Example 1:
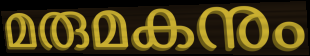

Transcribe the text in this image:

മരുമകനും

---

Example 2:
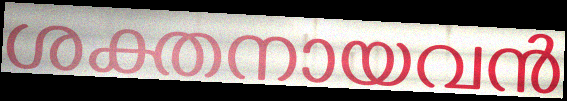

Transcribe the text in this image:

ശക്തനായവൻ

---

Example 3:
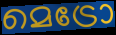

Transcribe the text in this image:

മെട്രോ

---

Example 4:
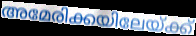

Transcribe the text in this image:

അമേരിക്കയിലേയ്ക്ക്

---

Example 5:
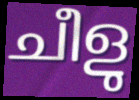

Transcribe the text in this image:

ചീളു